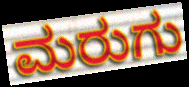
ಮರುಗು